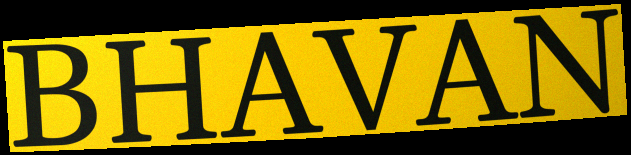
BHAVAN